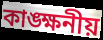
কাঙ্ক্ষনীয়